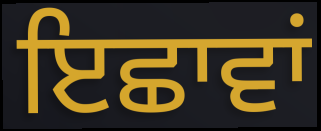
ਇਛਾਵਾਂ